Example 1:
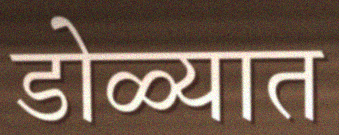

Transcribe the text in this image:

डोळ्यात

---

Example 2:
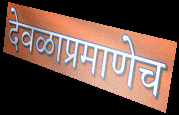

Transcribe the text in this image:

देवळाप्रमाणेच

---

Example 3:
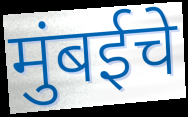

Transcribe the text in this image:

मुंबईचे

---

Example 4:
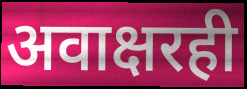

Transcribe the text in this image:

अवाक्षरही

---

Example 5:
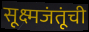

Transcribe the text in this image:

सूक्ष्मजंतूंची